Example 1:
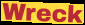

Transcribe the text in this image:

Wreck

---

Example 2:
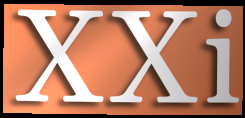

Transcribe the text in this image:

XXi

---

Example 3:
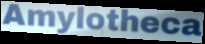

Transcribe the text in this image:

Amylotheca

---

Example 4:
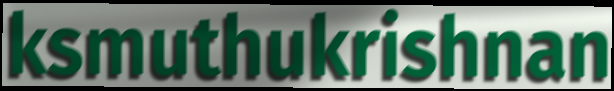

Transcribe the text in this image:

ksmuthukrishnan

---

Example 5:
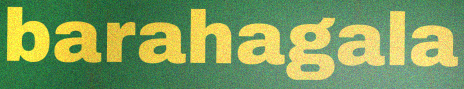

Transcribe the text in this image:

barahagala